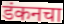
डंकनचा